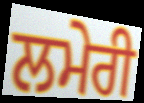
ਲਮੇਰੀ